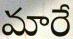
మారే